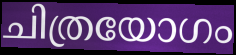
ചിത്രയോഗം